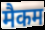
मैकम